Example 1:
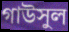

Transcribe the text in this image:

গাউসুল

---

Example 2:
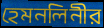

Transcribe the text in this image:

হেমনলিনীর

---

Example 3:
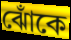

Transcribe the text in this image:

ঝোঁকে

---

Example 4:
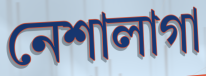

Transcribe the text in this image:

নেশালাগা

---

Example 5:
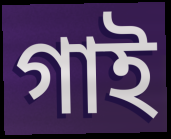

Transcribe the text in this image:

গাই